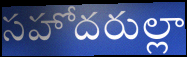
సహోదరుల్లా